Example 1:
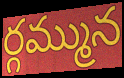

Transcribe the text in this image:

ర్గమ్మున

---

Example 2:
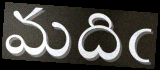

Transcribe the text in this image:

మదిఁ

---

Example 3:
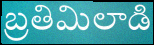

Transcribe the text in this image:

బ్రతిమిలాడి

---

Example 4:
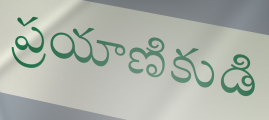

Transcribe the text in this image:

ప్రయాణికుడి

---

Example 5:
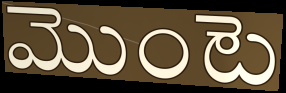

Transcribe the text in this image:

మొంటె